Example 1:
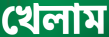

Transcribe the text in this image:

খেলাম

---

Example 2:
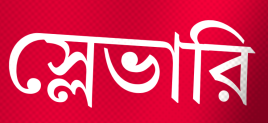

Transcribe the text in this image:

স্লেভারি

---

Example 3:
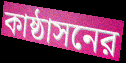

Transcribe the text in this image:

কাষ্ঠাসনের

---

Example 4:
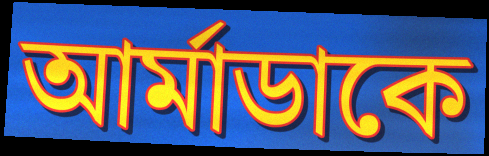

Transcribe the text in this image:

আর্মাডাকে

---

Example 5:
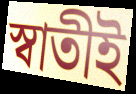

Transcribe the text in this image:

স্বাতীই